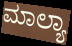
ಮಾಲ್ಯಾ